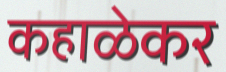
कहाळेकर